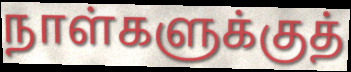
நாள்களுக்குத்